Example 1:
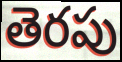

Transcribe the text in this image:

తెరపు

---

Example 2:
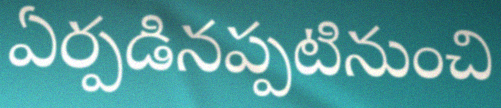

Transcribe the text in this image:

ఏర్పడినప్పటినుంచి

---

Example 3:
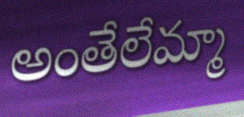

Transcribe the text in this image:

అంతేలేమ్మా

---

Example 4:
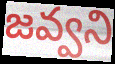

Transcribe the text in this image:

జవ్వని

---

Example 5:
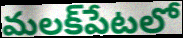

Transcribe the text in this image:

మలక్‌పేటలో